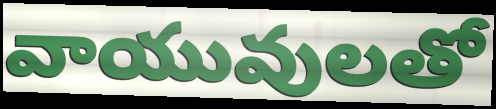
వాయువులతో